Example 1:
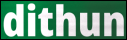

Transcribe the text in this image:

dithun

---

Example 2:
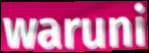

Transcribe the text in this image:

waruni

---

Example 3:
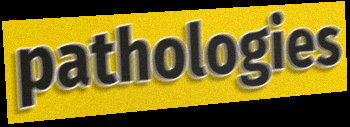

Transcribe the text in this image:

pathologies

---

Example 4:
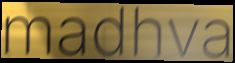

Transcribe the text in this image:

madhva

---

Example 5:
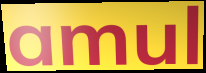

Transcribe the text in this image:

amul